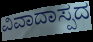
ವಿವಾದಾಸ್ಪದ